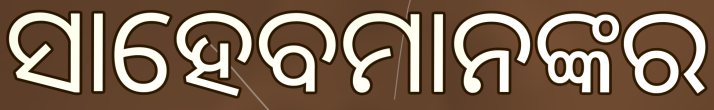
ସାହେବମାନଙ୍କର